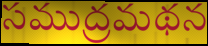
సముద్రమథన